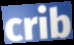
crib